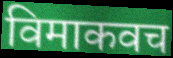
विमाकवच